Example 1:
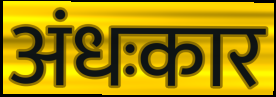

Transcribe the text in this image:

अंधःकार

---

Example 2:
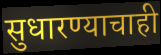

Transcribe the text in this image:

सुधारण्याचाही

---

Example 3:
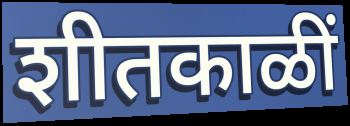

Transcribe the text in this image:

शीतकाळीं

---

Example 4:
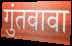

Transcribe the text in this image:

गुंतवावा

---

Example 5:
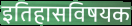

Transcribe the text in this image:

इतिहासविषयक